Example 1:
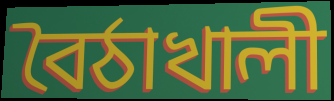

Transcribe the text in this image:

বৈঠাখালী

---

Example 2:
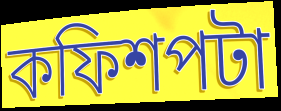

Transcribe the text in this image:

কফিশপটা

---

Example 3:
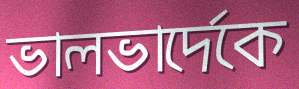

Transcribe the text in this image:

ভালভার্দেকে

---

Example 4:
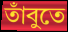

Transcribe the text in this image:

তাঁবুতে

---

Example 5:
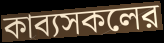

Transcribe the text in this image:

কাব্যসকলের